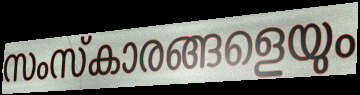
സംസ്‌കാരങ്ങളെയും